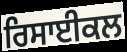
ਰਿਸਾਈਕਲ